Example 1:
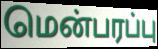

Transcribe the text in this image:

மென்பரப்பு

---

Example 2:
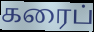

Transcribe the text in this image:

கரைப்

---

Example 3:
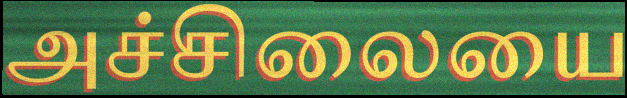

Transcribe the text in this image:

அச்சிலையை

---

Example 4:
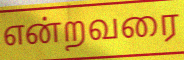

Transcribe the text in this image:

என்றவரை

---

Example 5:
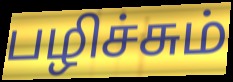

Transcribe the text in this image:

பழிச்சும்